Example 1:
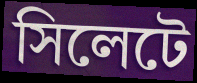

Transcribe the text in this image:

সিলেটে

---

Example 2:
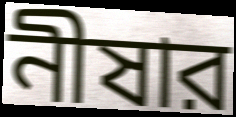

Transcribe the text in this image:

নীষার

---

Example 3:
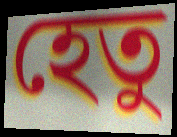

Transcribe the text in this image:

হেতু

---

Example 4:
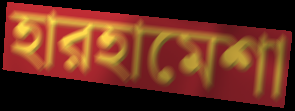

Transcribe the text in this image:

হারহামেশা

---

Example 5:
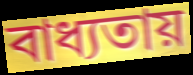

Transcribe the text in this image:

বাধ্যতায়